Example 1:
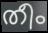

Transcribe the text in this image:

തീം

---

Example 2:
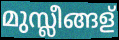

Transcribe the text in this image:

മുസ്ലീങ്ങള്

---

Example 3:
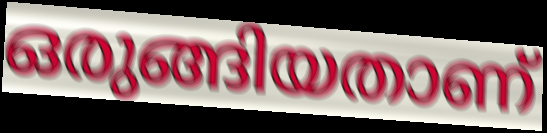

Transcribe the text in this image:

ഒരുങ്ങിയതാണ്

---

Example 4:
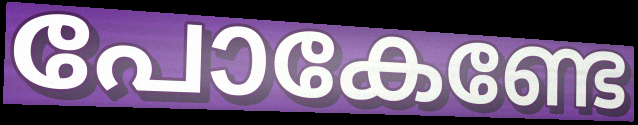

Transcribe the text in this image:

പോകേണ്ടേ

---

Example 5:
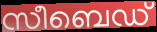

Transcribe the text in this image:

സീബെഡ്